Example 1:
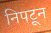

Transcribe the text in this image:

निपटून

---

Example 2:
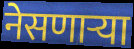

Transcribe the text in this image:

नेसणाऱ्या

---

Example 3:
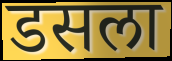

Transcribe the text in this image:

डसला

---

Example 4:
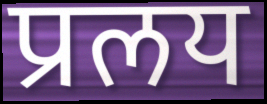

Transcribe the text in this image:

प्रलय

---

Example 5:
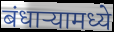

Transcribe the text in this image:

बंधाऱ्यामध्ये